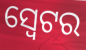
ସ୍ଵେଟର